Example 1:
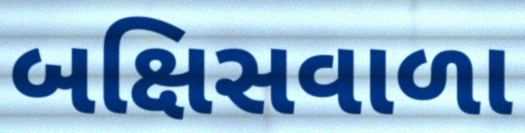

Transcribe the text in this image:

બક્ષિસવાળા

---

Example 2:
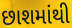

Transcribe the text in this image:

છાશમાંથી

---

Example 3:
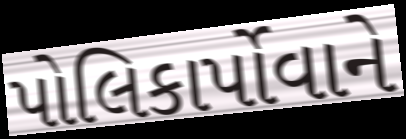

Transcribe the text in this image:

પોલિકાર્પોવાને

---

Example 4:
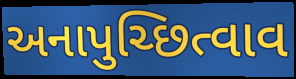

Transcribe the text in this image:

અનાપુચ્છિત્વાવ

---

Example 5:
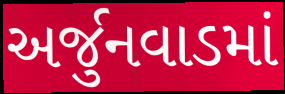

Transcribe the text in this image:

અર્જુનવાડમાં